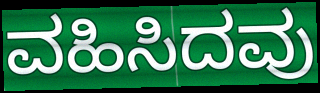
ವಹಿಸಿದವು